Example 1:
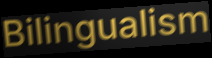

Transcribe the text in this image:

Bilingualism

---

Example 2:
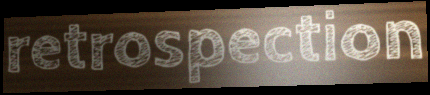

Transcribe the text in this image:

retrospection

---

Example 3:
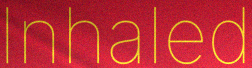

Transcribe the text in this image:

Inhaled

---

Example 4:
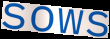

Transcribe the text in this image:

sows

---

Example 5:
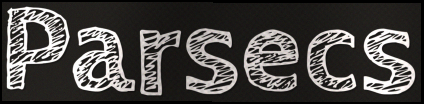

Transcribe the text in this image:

Parsecs